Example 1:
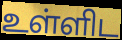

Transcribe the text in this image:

உள்ளிட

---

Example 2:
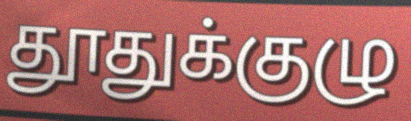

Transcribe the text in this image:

தூதுக்குழு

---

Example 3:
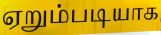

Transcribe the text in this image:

ஏறும்படியாக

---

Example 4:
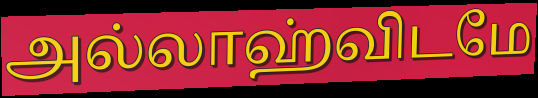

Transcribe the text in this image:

அல்லாஹ்விடமே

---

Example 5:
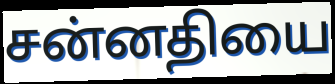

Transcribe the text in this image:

சன்னதியை